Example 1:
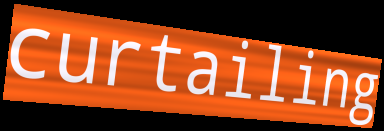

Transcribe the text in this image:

curtailing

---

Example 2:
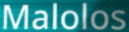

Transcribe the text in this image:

Malolos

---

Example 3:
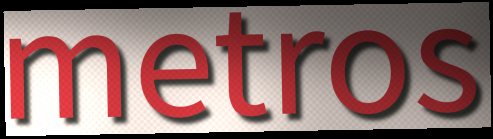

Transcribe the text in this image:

metros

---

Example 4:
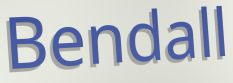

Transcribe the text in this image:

Bendall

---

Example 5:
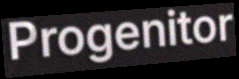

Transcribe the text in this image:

Progenitor